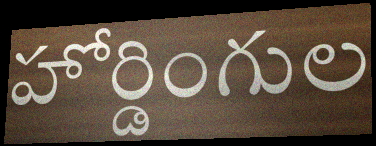
హోర్డింగుల